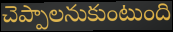
చెప్పాలనుకుంటుంది